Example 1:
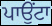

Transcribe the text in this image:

ਪਾਉੰਟਾ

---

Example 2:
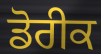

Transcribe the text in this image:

ਡੋਰੀਕ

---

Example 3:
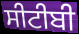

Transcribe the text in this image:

ਸੀਟੀਬੀ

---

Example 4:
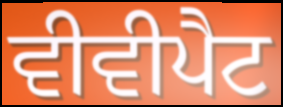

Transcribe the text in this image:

ਵੀਵੀਪੈਟ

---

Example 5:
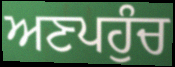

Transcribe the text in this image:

ਅਣਪਹੁੰਚ